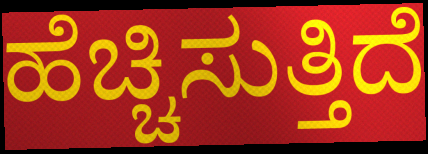
ಹೆಚ್ಚಿಸುತ್ತಿದೆ